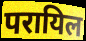
परायिल